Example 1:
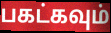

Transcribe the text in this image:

பகட்கவும்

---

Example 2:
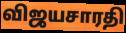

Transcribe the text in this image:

விஜயசாரதி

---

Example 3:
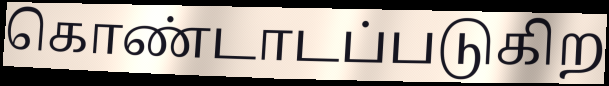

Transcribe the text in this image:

கொண்டாடப்படுகிற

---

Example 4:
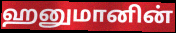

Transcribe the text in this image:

ஹனுமானின்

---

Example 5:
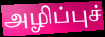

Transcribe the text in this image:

அழிப்புச்